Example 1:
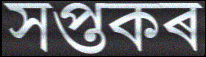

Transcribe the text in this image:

সপ্তকৰ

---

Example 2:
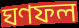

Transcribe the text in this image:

ঘণফল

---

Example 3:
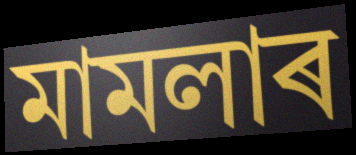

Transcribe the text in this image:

মামলাৰ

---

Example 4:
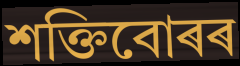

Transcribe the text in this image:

শক্তিবোৰৰ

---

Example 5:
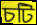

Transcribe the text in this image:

চটি